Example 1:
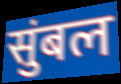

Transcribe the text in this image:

सुंबल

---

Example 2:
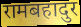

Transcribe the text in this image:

रामबहादुर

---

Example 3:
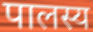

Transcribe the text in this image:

पालस्य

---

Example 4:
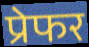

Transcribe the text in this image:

प्रेफर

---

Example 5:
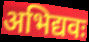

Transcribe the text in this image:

अभिद्यवः